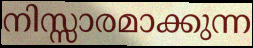
നിസ്സാരമാക്കുന്ന